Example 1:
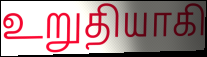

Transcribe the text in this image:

உறுதியாகி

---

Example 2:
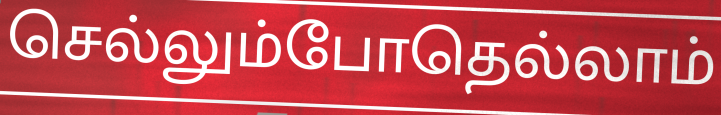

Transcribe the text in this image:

செல்லும்போதெல்லாம்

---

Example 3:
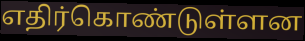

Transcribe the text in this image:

எதிர்கொண்டுள்ளன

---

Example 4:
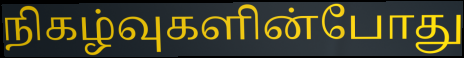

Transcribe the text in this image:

நிகழ்வுகளின்போது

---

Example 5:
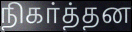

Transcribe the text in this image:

நிகர்த்தன